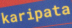
karipata